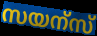
സയന്സ്